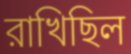
রাখিছিল